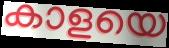
കാളയെ